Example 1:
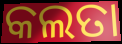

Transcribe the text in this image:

କଲତା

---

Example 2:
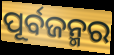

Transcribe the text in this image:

ପୂର୍ବଜନ୍ମର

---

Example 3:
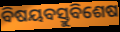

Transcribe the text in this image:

ବିଷୟବସ୍ତୁବିଶେଷ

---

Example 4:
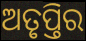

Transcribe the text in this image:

ଅତୃପ୍ତିର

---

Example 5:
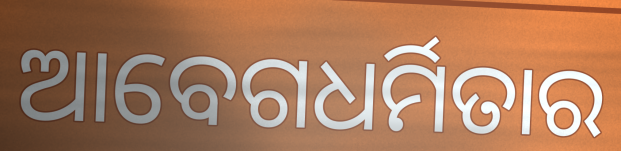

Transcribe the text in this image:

ଆବେଗଧର୍ମିତାର